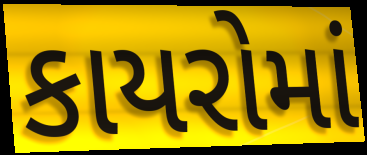
કાયરોમાં